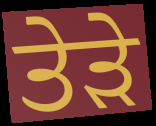
ਤੇੜੇ